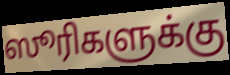
ஸூரிகளுக்கு